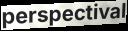
perspectival